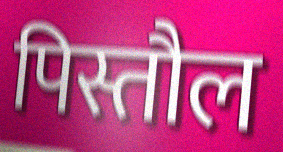
पिस्तौल